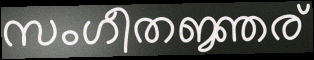
സംഗീതജ്ഞര്